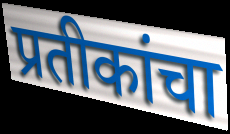
प्रतीकांचा